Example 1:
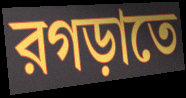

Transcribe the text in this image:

রগড়াতে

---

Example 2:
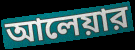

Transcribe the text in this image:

আলেয়ার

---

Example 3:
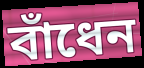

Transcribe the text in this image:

বাঁধেন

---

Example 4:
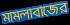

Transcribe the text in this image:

মামলাবাজের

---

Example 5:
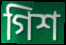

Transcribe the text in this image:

গিশ